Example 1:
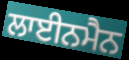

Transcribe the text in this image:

ਲਾਈਨਮੈਨ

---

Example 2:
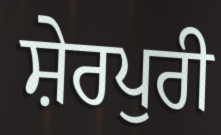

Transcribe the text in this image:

ਸ਼ੇਰਪੁਰੀ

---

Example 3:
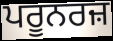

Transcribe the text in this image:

ਪਰੂਨਰਜ਼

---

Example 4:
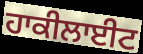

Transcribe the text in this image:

ਹਾਕੀਲਾਈਟ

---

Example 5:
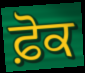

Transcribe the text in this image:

ਫ਼ੋਕ